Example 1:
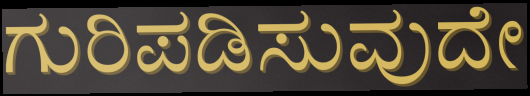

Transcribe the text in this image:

ಗುರಿಪಡಿಸುವುದೇ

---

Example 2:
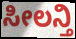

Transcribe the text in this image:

ಸೀಲನ್ತಿ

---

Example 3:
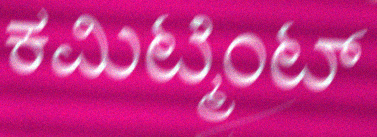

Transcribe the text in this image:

ಕಮಿಟ್ಮೆಂಟ್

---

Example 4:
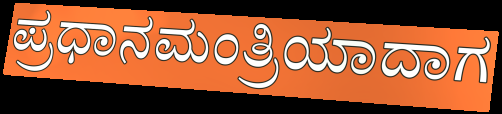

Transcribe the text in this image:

ಪ್ರಧಾನಮಂತ್ರಿಯಾದಾಗ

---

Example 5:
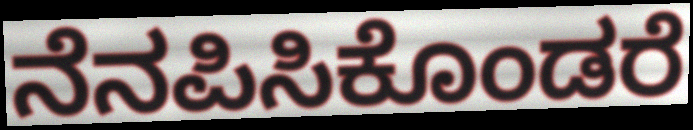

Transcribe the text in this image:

ನೆನಪಿಸಿಕೊಂಡರೆ